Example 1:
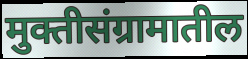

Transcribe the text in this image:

मुक्तीसंग्रामातील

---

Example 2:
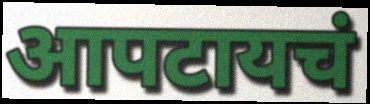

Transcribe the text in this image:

आपटायचं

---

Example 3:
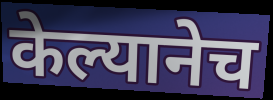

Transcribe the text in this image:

केल्यानेच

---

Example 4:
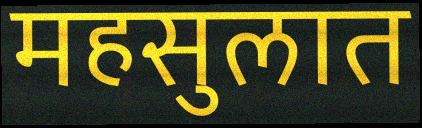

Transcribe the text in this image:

महसुलात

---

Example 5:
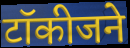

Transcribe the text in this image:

टॉकीजने